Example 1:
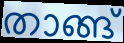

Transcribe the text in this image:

താങ്ങ്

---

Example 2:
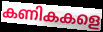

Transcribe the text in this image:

കണികകളെ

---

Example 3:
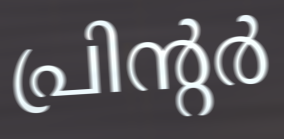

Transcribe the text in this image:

പ്രിന്റർ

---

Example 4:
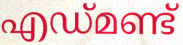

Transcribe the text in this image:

എഡ്മണ്ട്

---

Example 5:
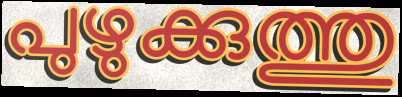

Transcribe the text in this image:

പുഴുക്കുത്തു